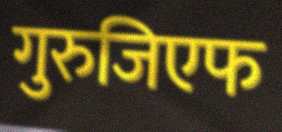
गुरुजिएफ